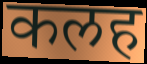
कलह